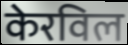
केरविल